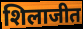
शिलाजीत